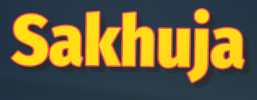
Sakhuja